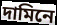
দামিনে